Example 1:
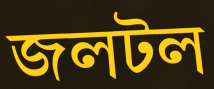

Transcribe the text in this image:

জলটল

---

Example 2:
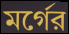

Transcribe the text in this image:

মর্গের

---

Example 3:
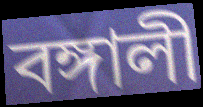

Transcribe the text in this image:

বঙ্গালী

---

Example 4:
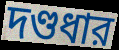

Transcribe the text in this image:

দণ্ডধার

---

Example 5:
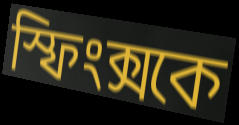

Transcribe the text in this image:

স্ফিংক্সকে